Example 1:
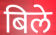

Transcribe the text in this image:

बिले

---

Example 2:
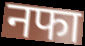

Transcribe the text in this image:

नफा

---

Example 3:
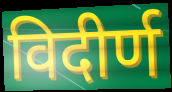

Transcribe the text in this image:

विदीर्ण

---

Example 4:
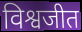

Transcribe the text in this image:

विश्वजीत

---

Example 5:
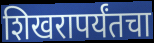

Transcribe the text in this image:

शिखरापर्यंतचा